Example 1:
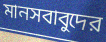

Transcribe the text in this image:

মানসবাবুদের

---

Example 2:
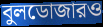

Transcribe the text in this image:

বুলডোজারও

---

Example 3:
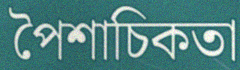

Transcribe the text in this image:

পৈশাচিকতা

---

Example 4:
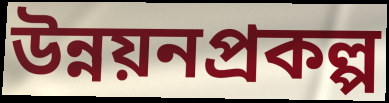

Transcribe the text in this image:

উন্নয়নপ্রকল্প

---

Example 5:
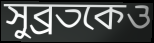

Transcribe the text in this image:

সুব্রতকেও